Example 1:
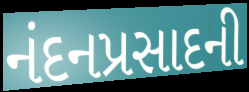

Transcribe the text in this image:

નંદનપ્રસાદની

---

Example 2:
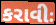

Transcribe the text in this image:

કરાવીઃ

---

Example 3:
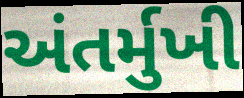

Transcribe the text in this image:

અંતર્મુખી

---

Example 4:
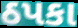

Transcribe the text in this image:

ઠપકા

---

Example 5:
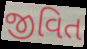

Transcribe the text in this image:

જીવિત